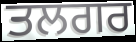
ਤਲਗਰ